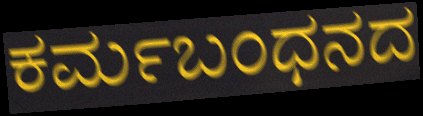
ಕರ್ಮಬಂಧನದ